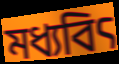
মধ্যবিৎ